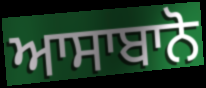
ਆਸਾਬਾਨੋ